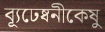
ব্যূঢেষ্বনীকেষু